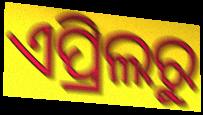
ଏପ୍ରିଲରୁ